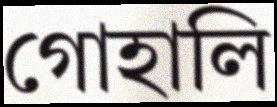
গোহালি